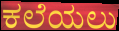
ಕಲೆಯಲು